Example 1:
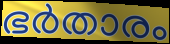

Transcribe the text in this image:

ഭർതാരം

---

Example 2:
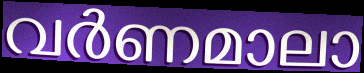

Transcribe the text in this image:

വർണമാലാ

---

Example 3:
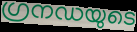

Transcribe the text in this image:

ഗ്രനഡയുടെ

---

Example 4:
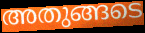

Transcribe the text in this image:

അതുങ്ങടെ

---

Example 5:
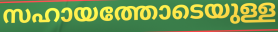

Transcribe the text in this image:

സഹായത്തോടെയുള്ള